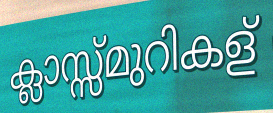
ക്ലാസ്സ്മുറികള്